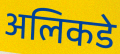
अलिकडे